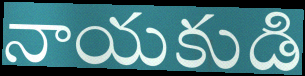
నాయకుడి